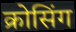
क्रोसिंग